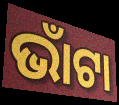
ଭାଁଟା